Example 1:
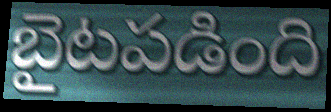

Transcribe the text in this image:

బైటపడింది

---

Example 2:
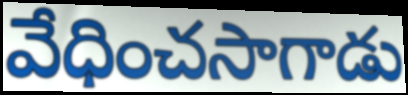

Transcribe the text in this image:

వేధించసాగాడు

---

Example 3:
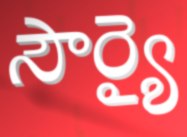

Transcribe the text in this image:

సౌర్యై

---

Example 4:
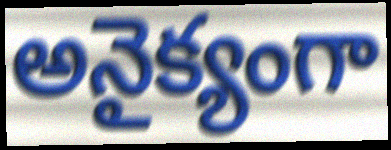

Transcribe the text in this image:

అనైక్యంగా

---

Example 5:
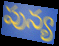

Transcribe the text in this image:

పున్య